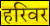
हरिवर